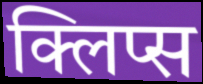
क्लिप्स